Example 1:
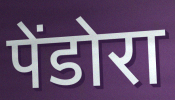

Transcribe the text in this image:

पेंडोरा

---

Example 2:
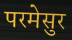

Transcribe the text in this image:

परमेसुर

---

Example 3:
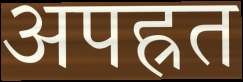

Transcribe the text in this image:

अपह्रत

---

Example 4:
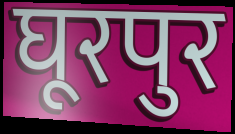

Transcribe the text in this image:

घूरपुर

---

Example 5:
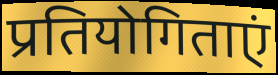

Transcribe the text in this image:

प्रतियोगिताएं